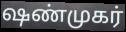
ஷண்முகர்